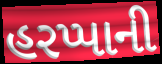
હરપ્પાની